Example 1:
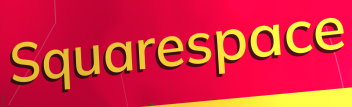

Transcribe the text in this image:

Squarespace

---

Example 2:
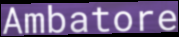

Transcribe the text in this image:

Ambatore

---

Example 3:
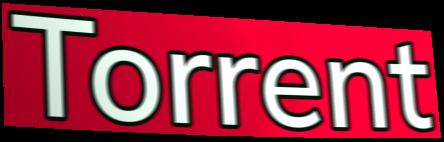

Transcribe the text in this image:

Torrent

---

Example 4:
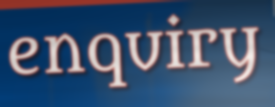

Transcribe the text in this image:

enquiry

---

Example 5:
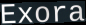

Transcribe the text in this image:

Exora